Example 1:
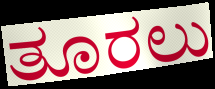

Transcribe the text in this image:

ತೂರಲು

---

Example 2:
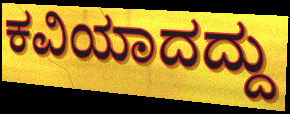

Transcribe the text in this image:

ಕವಿಯಾದದ್ದು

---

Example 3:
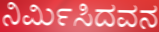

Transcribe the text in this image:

ನಿರ್ಮಿಸಿದವನ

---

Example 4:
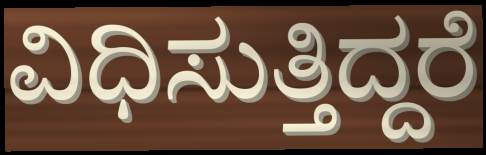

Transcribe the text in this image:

ವಿಧಿಸುತ್ತಿದ್ದರೆ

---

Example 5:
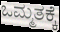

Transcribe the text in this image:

ಒಮ್ಮತಕ್ಕೆ